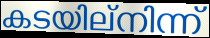
കടയില്നിന്ന്